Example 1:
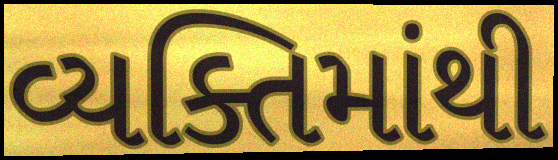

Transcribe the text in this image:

વ્યક્તિમાંથી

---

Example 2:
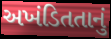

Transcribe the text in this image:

અખંડિતતાનું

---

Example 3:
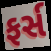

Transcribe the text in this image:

ફર્સ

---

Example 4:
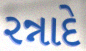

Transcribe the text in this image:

રન્નાદે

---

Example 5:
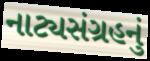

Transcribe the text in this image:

નાટ્યસંગ્રહનું